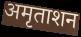
अमृताशन